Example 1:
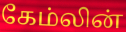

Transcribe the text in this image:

கேம்லின்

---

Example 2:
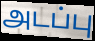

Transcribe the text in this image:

அடப்பு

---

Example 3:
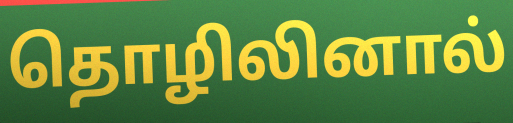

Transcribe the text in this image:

தொழிலினால்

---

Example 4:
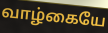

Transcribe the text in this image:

வாழ்கையே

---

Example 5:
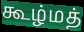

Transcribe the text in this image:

கூழ்மத்